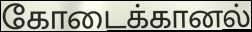
கோடைக்கானல்